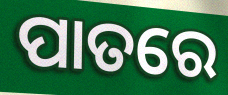
ପାତରେ